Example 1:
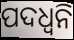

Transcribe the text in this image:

ପଦଧ୍ଵନି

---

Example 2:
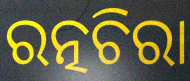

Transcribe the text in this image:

ରତ୍ନଚିରା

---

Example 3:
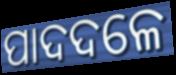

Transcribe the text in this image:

ପାଦଦଳେ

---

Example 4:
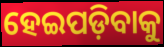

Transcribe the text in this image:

ହେଇପଡ଼ିବାକୁ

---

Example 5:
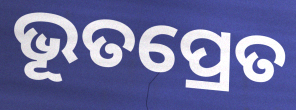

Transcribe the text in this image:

ଭୂତପ୍ରେତ